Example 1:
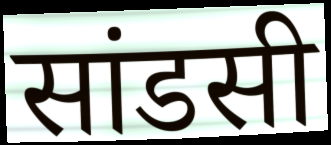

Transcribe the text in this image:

सांडसी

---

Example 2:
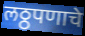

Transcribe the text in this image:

लठ्ठपणाचे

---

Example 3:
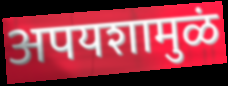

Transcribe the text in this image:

अपयशामुळं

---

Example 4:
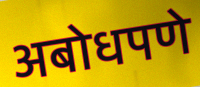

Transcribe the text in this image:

अबोधपणे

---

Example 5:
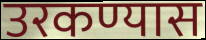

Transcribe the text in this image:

उरकण्यास